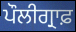
ਪੌਲੀਗ੍ਰਾਫ਼